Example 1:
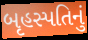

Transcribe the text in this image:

બૃહસ્પતિનું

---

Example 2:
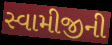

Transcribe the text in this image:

સ્વામીજીની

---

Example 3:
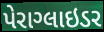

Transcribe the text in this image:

પેરાગ્લાઇડર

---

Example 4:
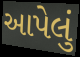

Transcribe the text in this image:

આપેલું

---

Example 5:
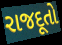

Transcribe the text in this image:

રાજદૂતો